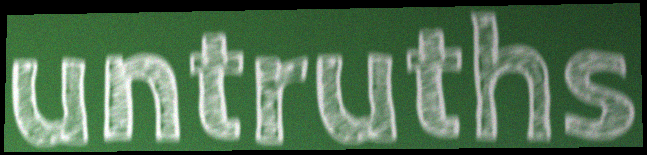
untruths